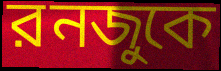
রনজুকে